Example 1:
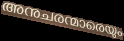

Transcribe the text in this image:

അനുചരന്മാരെയും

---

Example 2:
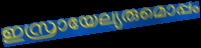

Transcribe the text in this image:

ഇസ്രായേല്യരുമൊപ്പം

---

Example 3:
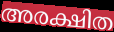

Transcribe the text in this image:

അരക്ഷിത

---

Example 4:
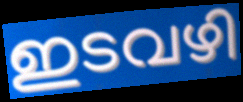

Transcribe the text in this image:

ഇടവഴി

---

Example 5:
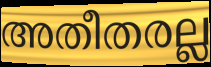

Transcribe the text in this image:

അതീതരല്ല